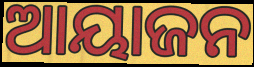
ଆୟାଜନ